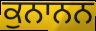
ਕੁਨਾਨਨ